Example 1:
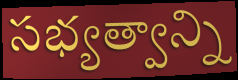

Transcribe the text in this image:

సభ్యత్వాన్ని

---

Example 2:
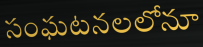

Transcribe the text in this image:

సంఘటనలలోనూ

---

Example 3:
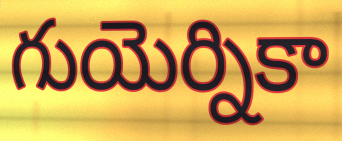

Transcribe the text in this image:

గుయెర్నికా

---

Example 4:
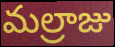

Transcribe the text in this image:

మల్రాజు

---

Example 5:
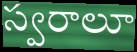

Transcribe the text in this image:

స్వరాలూ